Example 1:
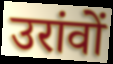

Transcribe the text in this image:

उरांवों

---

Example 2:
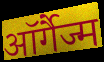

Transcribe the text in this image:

ऑर्गैज्म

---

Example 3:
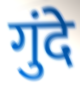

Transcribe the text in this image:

गुंदे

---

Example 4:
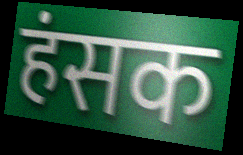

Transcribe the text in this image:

हंसक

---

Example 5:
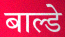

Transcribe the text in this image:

बाल्डे